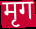
मृग